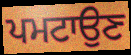
ਪਮਟਾਉਣ